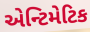
એન્ટિમેટિક